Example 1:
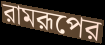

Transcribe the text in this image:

রামরূপের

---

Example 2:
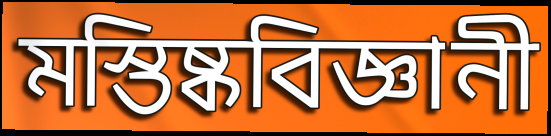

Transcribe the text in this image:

মস্তিষ্কবিজ্ঞানী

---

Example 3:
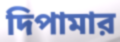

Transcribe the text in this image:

দিপামার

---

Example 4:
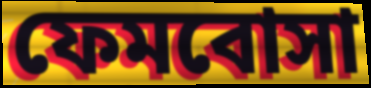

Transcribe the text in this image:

ফেমবোসা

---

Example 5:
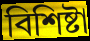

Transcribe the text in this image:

বিশিষ্টা